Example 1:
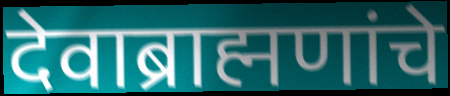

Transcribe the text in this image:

देवाब्राह्मणांचे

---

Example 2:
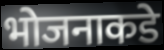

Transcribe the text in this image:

भोजनाकडे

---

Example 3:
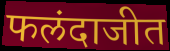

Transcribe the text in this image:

फलंदाजीत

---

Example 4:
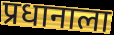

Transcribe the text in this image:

प्रधानाला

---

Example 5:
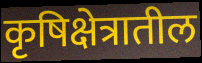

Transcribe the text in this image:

कृषिक्षेत्रातील